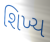
શિખ્ય